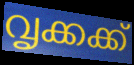
വൃക്കക്ക്